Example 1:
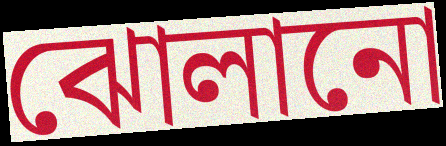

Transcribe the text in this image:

ঝোলানো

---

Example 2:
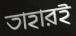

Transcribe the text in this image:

তাহারই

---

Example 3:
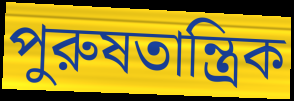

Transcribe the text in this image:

পুরুষতান্ত্রিক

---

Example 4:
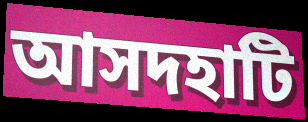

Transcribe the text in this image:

আসদহাটি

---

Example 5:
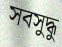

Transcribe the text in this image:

সবসুদ্ধু